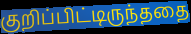
குறிப்பிட்டிருந்ததை